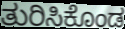
ತುರಿಸಿಕೊಂಡ